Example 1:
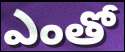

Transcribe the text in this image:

ఎంతో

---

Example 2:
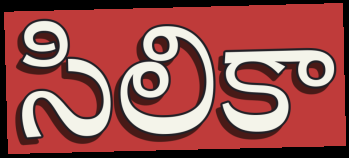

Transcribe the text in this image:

సిలికా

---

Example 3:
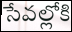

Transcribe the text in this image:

సేవల్లోకి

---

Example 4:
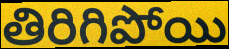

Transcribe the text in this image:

తిరిగిపోయి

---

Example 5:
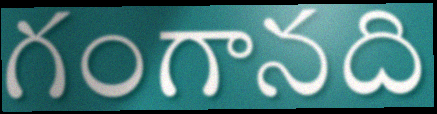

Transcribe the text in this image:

గంగానది